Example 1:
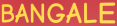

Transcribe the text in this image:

BANGALE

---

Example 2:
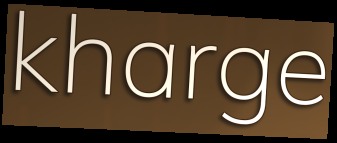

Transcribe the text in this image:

kharge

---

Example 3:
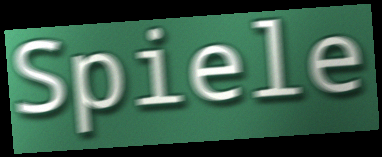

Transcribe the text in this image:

Spiele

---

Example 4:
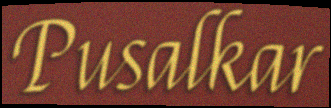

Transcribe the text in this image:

Pusalkar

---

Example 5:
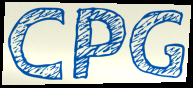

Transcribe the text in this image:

CPG